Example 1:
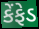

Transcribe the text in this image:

કેંફેડ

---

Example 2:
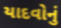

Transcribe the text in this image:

યાદવોનું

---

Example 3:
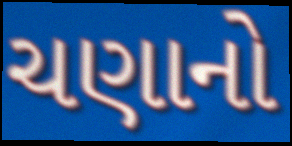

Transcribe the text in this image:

ચણાનો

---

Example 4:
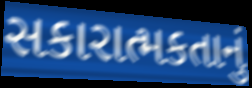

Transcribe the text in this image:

સકારાત્મકતાનું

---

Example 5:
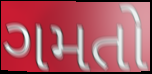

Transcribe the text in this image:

ગમતો